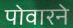
पोवारने